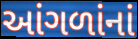
આંગળાંનાં